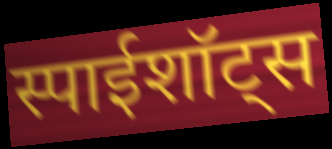
स्पाईशॉट्स